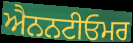
ਐਨਨਟੀਓਮਰ